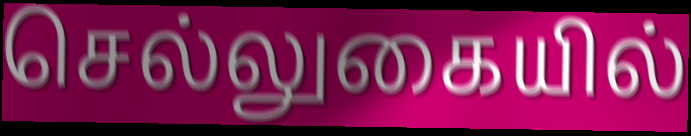
செல்லுகையில்